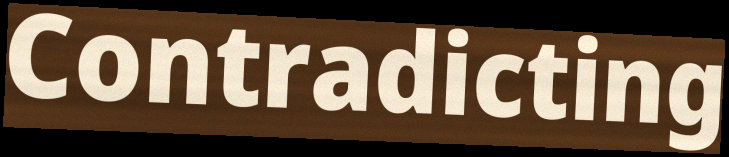
Contradicting